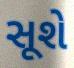
સૂશે